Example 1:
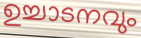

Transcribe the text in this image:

ഉച്ചാടനവും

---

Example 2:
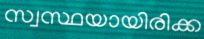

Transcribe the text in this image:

സ്വസ്ഥയായിരിക്ക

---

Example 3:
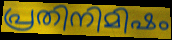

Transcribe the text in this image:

പ്രതിനിമിഷം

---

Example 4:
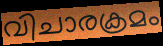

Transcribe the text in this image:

വിചാരക്രമം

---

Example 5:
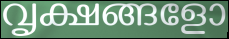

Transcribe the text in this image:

വൃക്ഷങ്ങളോ